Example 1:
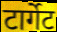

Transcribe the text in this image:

टार्गेट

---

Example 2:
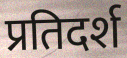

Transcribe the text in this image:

प्रतिदर्श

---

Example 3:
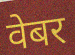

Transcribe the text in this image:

वेबर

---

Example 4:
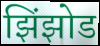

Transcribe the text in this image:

झिंझोड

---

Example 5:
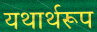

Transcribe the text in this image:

यथार्थरूप